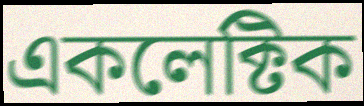
একলেক্টিক